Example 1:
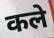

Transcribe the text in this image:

कले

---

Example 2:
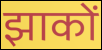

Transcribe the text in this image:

झाकों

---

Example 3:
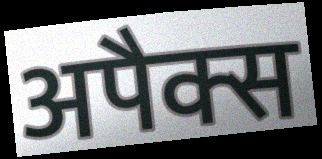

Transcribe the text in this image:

अपैक्स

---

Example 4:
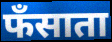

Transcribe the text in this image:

फँसाता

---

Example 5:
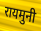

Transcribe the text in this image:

रायमुनी